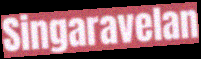
Singaravelan